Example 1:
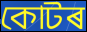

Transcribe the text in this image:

কোটৰ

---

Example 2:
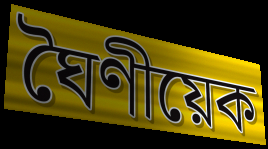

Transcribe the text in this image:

ঘৈণীয়েক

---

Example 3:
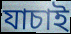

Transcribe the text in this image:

যাচাই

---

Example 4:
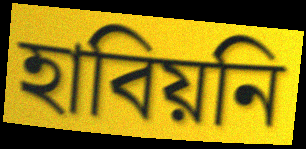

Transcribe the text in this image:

হাবিয়নি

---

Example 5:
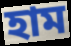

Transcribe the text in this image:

হাম